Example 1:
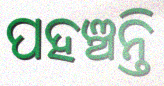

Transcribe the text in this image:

ପହଞ୍ଚନ୍ତି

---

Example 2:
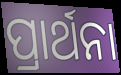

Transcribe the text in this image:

ପ୍ରାର୍ଥନା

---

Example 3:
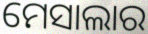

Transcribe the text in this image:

ମେସାଲାର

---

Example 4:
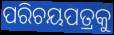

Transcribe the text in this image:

ପରିଚୟପତ୍ରକୁ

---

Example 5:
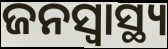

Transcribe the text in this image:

ଜନସ୍ବାସ୍ଥ୍ୟ